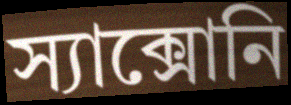
স্যাক্সোনি